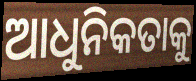
ଆଧୁନିକତାକୁ